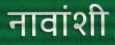
नावांशी